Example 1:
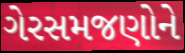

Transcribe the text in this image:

ગેરસમજણોને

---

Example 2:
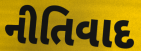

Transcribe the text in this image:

નીતિવાદ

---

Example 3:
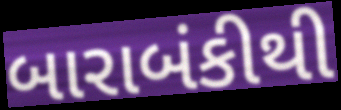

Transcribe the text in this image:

બારાબંકીથી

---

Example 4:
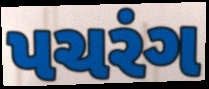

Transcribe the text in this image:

પચરંગ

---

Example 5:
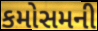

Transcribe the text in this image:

કમોસમની